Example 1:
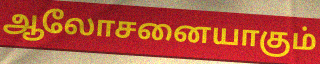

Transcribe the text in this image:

ஆலோசனையாகும்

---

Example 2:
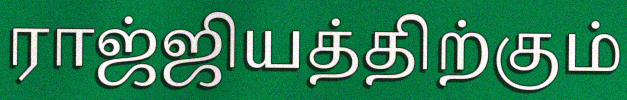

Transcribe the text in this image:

ராஜ்ஜியத்திற்கும்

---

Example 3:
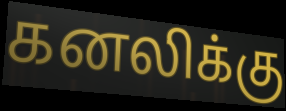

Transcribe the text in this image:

கனலிக்கு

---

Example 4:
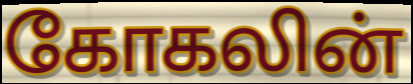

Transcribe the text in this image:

கோகலின்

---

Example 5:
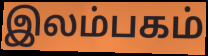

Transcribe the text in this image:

இலம்பகம்